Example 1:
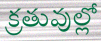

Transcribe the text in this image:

క్రతువుల్లో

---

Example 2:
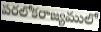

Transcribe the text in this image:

పరలోకరాజ్యములో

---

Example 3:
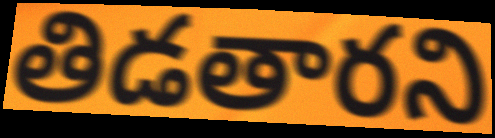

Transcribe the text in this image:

తిడతారని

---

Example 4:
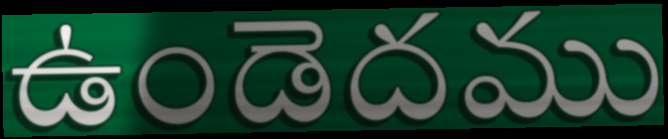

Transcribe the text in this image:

ఉండెదము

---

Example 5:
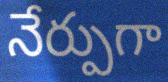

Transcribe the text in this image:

నేర్పుగా